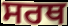
ਸਰਥ